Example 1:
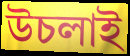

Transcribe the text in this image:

উচলাই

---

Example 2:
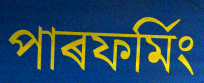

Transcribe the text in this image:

পাৰফৰ্মিং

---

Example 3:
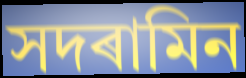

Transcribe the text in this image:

সদৰামিন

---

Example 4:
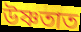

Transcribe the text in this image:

উষ্ণতাত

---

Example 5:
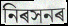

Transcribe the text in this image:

নিৰসনৰ